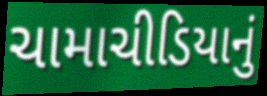
ચામાચીડિયાનું